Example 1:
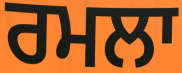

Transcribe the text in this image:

ਰਮਲਾ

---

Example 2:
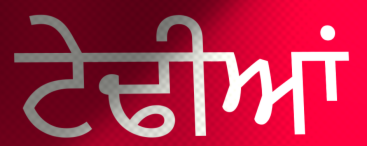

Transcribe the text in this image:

ਟੇਢੀਆਂ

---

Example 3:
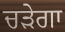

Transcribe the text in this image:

ਚੜੇਗਾ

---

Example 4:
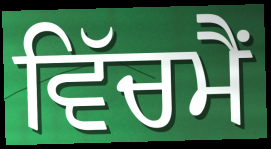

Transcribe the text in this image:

ਵਿੱਚਮੈਂ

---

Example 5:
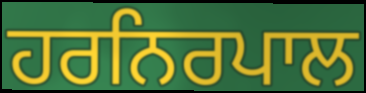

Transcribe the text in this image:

ਹਰਨਿਰਪਾਲ